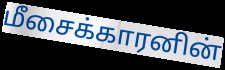
மீசைக்காரனின்